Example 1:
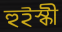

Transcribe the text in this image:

হুইস্কী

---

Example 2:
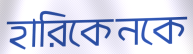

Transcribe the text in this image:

হারিকেনকে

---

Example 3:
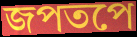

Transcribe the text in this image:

জপতপে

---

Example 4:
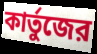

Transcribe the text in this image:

কার্তুজের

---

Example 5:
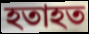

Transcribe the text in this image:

হতাহত